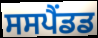
ਸਸਪੈਂਡਡ